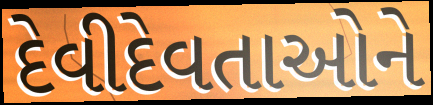
દેવીદેવતાઓને